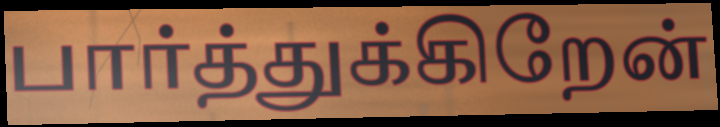
பார்த்துக்கிறேன்